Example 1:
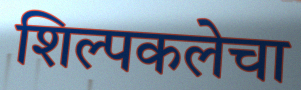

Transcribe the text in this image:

शिल्पकलेचा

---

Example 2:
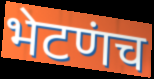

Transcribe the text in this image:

भेटणंच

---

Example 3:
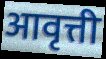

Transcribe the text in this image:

आवृत्ती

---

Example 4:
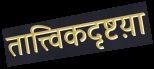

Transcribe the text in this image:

तात्त्विकदृष्टय़ा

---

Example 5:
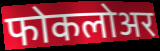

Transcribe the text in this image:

फोकलोअर